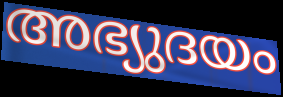
അഭ്യുദയം